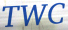
TWC